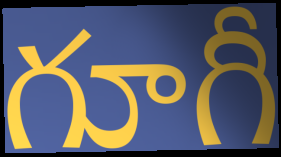
గూగీ